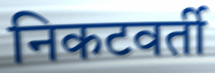
निकटवर्ती